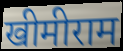
खीमीराम